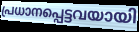
പ്രധാനപ്പെട്ടവയായി